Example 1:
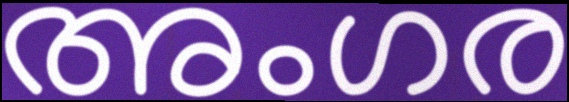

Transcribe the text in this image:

അംഗര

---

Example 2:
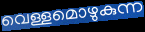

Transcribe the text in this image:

വെള്ളമൊഴുകുന്ന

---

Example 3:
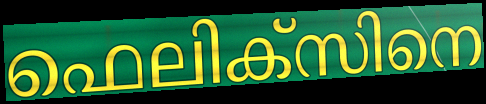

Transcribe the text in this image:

ഫെലിക്സിനെ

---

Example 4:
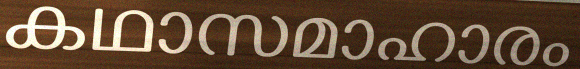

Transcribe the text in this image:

കഥാസമാഹാരം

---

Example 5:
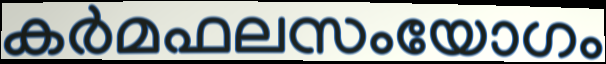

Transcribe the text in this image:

കർമഫലസംയോഗം